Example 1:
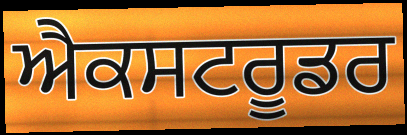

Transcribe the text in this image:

ਐਕਸਟਰੂਡਰ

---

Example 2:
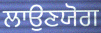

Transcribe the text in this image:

ਲਾਉਣਯੋਗ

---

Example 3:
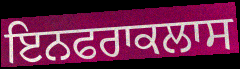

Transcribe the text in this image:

ਇਨਫਰਾਕਲਾਸ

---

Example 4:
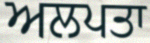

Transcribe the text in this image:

ਅਲਪਤਾ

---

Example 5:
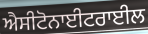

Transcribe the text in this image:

ਐਸੀਟੋਨਾਈਟਰਾਈਲ